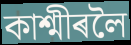
কাশ্মীৰলৈ